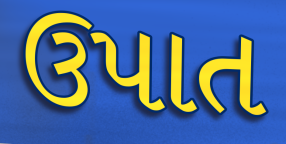
ઉપાત